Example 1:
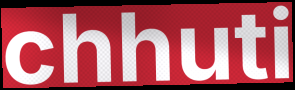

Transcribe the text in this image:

chhuti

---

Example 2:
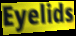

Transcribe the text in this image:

Eyelids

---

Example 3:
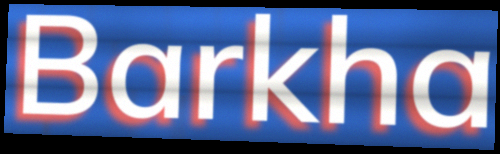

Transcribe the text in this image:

Barkha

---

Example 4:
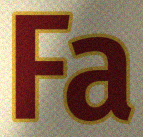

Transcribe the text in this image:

Fa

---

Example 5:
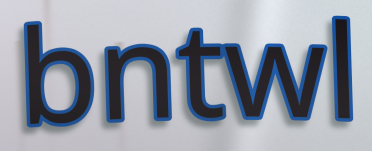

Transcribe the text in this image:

bntwl